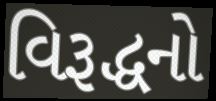
વિરૂદ્ધનો